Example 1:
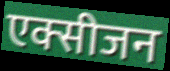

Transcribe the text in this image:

एक्सीजन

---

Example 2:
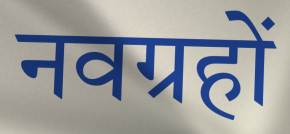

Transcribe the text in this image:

नवग्रहों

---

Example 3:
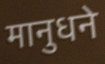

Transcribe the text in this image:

मानुधने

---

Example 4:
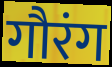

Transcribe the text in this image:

गौरंग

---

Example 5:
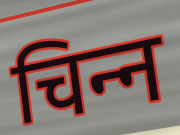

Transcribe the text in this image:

चिन्न